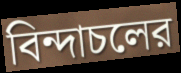
বিন্দাচলের